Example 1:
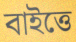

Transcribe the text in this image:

বাইত্তে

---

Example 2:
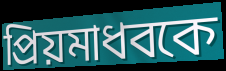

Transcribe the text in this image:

প্রিয়মাধবকে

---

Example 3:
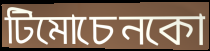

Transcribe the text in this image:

টিমোচেনকো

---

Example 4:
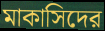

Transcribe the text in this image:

মাকাসিদের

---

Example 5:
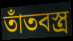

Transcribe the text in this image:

তাঁতবস্ত্র